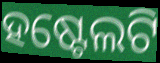
ହଷ୍ଟେଲଟି